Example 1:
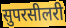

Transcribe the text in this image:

सुपरसीलरी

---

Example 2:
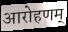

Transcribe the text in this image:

आरोहणम्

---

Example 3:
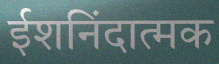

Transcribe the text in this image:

ईशनिंदात्मक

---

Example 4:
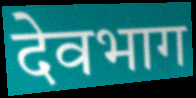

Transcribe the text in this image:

देवभाग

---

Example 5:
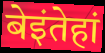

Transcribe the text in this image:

बेइंतेहां